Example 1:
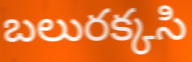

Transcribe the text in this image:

బలురక్కసి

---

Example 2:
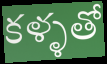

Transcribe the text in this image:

కళ్ళతో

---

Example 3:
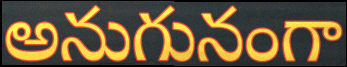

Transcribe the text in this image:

అనుగునంగా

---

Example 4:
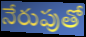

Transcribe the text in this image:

నేరుపుతో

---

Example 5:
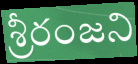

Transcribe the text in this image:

శ్రీరంజని